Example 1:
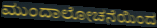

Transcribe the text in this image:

ಮುಂದಾಲೋಚನೆಯಿಂದ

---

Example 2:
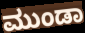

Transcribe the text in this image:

ಮುಂಡಾ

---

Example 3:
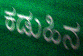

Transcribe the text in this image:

ಕಡುಹಿನ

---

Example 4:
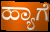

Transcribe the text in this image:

ಹ್ಯಾಗೆ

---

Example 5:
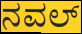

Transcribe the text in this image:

ನವಲ್